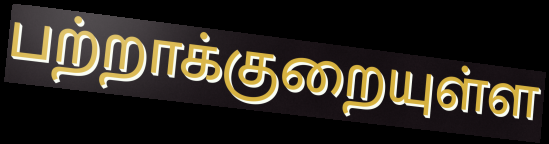
பற்றாக்குறையுள்ள